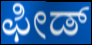
ಫೀಡ್